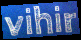
vihir